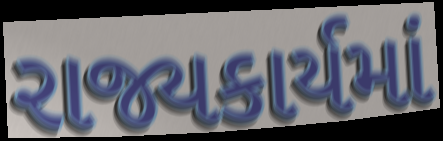
રાજ્યકાર્યમાં